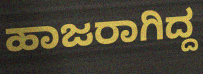
ಹಾಜರಾಗಿದ್ದ